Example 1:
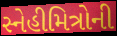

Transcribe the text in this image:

સ્નેહીમિત્રોની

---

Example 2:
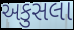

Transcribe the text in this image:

અકુસલા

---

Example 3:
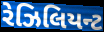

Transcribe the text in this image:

રેઝિલિયન્ટ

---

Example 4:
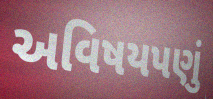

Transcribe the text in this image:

અવિષયપણું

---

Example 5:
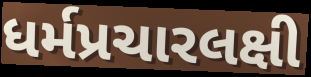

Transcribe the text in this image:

ધર્મપ્રચારલક્ષી